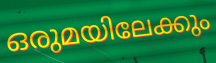
ഒരുമയിലേക്കും